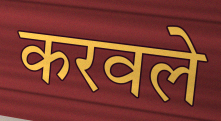
करवले